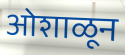
ओशाळून